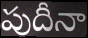
పుదీనా